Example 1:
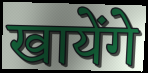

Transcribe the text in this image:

खायेंगे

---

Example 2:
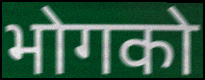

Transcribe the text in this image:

भोगको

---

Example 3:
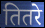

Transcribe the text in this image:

तितरे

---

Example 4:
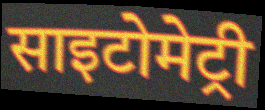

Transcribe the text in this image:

साइटोमेट्री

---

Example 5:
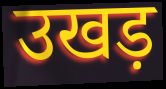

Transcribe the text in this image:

उखड़